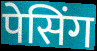
पेसिंग